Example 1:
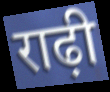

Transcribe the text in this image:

राढ़ी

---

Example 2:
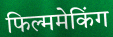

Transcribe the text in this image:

फिल्‍ममेकिंग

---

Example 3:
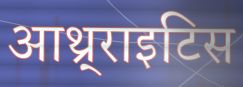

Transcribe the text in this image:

आथ्र्राइटिस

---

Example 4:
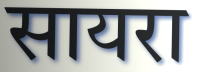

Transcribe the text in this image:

सायरा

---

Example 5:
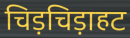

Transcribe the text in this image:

चिड़चिड़ाहट